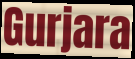
Gurjara